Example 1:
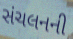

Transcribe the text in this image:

સંચલનની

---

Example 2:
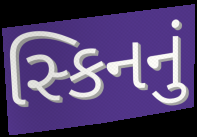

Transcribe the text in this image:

સ્કિનનું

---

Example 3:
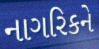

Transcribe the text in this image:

નાગરિકને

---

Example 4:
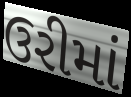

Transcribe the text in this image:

ઉરીમાં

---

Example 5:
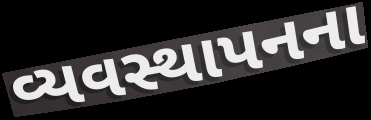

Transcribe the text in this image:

વ્યવસ્થાપનના